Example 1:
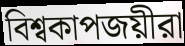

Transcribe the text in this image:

বিশ্বকাপজয়ীরা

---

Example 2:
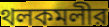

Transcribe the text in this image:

থলকমলীর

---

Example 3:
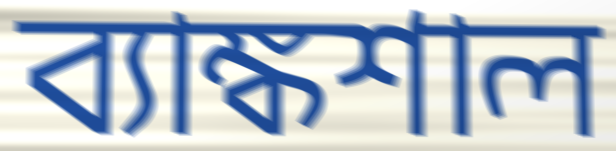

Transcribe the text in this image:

ব্যাঙ্কশাল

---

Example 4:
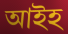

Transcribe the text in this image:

আইহ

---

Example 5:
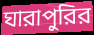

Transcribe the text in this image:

ঘারাপুরির